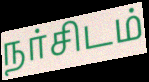
நர்சிடம்